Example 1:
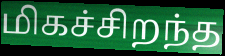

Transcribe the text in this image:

மிகச்சிறந்த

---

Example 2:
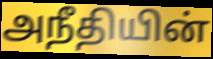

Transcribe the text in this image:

அநீதியின்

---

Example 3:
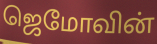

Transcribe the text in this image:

ஜெமோவின்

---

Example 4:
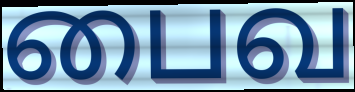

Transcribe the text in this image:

பைவ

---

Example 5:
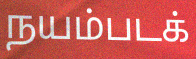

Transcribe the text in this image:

நயம்படக்